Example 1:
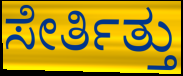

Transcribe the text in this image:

ಸೇರ್ತಿತ್ತು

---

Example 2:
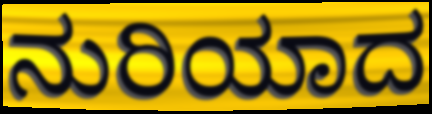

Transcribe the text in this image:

ನುರಿಯಾದ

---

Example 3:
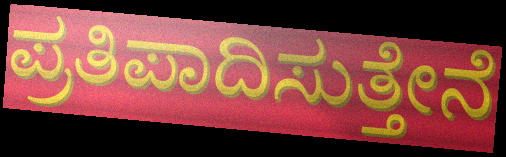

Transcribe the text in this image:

ಪ್ರತಿಪಾದಿಸುತ್ತೇನೆ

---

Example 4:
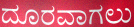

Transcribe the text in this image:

ದೂರವಾಗಲು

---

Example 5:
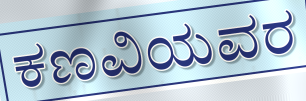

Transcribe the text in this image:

ಕಣವಿಯವರ